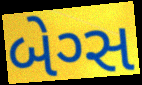
બેગ્સ